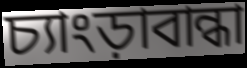
চ্যাংড়াবান্ধা